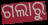
ଗଲାରୁ